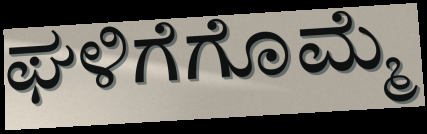
ಘಳಿಗೆಗೊಮ್ಮೆ